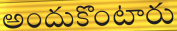
అందుకొంటారు